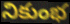
నికుంభ